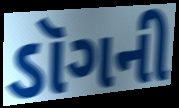
ડૉગની